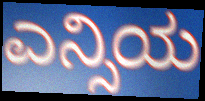
ಎನ್ಸಿಯ